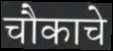
चौकाचे